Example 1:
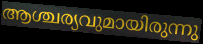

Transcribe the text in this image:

ആശ്ചര്യവുമായിരുന്നു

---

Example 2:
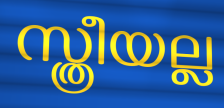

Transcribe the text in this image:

സ്ത്രീയല്ല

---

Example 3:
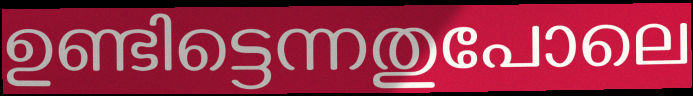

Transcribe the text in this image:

ഉണ്ടിട്ടെന്നതുപോലെ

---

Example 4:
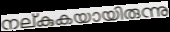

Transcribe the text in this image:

നല്കുകയായിരുന്നു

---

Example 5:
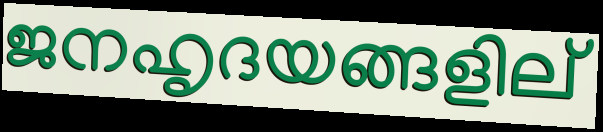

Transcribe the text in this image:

ജനഹൃദയങ്ങളില്